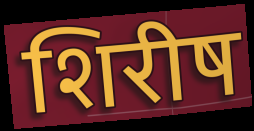
शिरीष